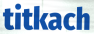
titkach